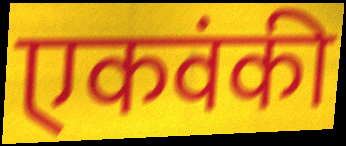
एकवंकी